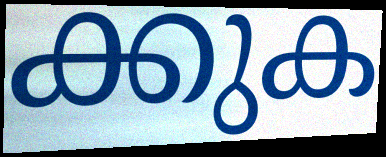
ക്കുക